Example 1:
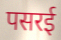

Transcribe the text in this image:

पसरई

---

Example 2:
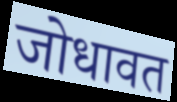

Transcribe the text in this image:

जोधावत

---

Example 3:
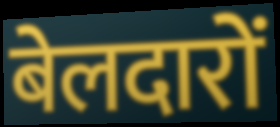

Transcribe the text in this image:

बेलदारों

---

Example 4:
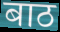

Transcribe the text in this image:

बाठ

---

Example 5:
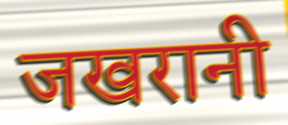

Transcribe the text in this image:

जखरानी